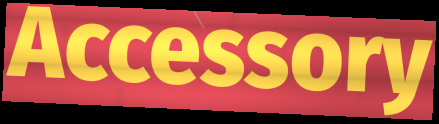
Accessory